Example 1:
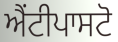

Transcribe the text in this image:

ਐਂਟੀਪਾਸਟੋ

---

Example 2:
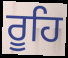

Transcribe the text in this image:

ਰੂਹਿ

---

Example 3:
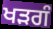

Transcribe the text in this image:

ਖੜਗੰ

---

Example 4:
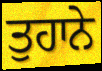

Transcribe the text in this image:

ਤੁਹਾਨੇ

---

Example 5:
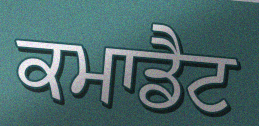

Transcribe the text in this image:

ਕਮਾਡੈਟ